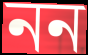
নন